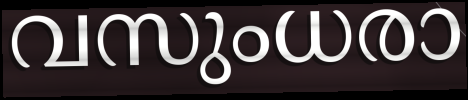
വസുംധരാ